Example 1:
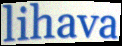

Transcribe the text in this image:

lihava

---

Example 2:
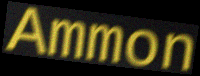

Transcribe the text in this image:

Ammon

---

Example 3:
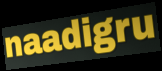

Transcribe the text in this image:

naadigru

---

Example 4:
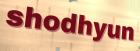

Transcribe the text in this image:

shodhyun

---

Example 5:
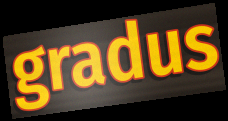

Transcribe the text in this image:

gradus